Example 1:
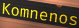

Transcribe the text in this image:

Komnenos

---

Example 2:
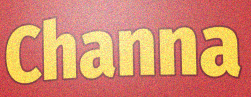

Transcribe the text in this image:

Channa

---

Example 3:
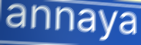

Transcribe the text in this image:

annaya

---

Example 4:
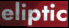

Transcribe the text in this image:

eliptic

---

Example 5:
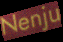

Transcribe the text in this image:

Nenju